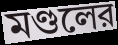
মণ্ডলের